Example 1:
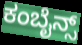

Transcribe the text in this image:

ಕಂಬೈನ್ಸ್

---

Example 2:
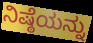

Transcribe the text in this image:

ನಿಷ್ಠೆಯನ್ನು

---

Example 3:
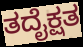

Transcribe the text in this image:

ತದೈಕ್ಷತ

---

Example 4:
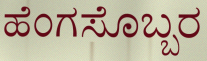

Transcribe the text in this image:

ಹೆಂಗಸೊಬ್ಬರ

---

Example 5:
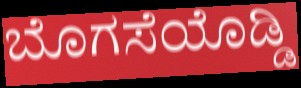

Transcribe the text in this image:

ಬೊಗಸೆಯೊಡ್ಡಿ